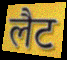
लैट